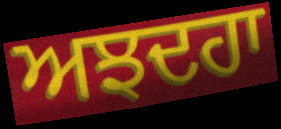
ਅਝਦਹਾ